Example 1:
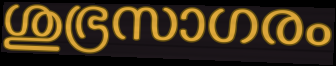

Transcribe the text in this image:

ശുഭ്രസാഗരം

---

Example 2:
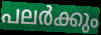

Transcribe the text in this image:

പലർക്കും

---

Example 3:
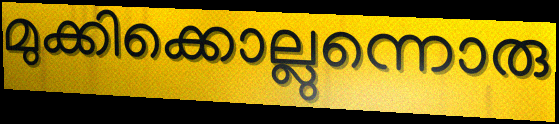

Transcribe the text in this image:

മുക്കിക്കൊല്ലുന്നൊരു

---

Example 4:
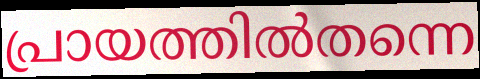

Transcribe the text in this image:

പ്രായത്തിൽതന്നെ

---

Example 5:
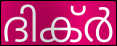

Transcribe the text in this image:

ദിക്ർ